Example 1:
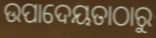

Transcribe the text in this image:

ଉପାଦେୟତାଠାରୁ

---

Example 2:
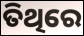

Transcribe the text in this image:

ତିଥିରେ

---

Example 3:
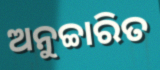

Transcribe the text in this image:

ଅନୁଚ୍ଚାରିତ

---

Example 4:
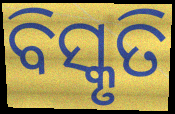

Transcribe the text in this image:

ବିସ୍କୃତି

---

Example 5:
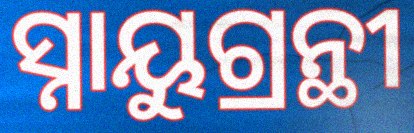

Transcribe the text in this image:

ସ୍ନାୟୁଗ୍ରନ୍ଥୀ